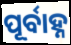
ପୂର୍ବାହ୍ନ